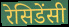
रेसिडेंसी